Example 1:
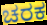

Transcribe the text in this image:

ಚರಕ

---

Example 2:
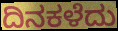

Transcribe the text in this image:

ದಿನಕಳೆದು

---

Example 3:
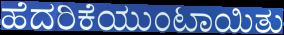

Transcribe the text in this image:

ಹೆದರಿಕೆಯುಂಟಾಯಿತು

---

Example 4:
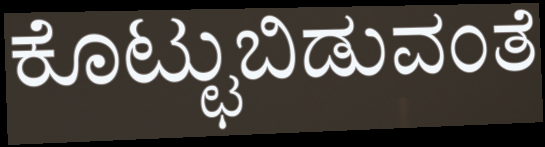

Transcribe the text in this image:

ಕೊಟ್ಟುಬಿಡುವಂತೆ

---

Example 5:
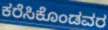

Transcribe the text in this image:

ಕರೆಸಿಕೊಂಡವರ